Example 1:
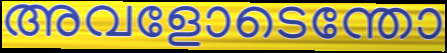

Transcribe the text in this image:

അവളോടെന്തോ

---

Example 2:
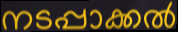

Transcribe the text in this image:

നടപ്പാക്കൽ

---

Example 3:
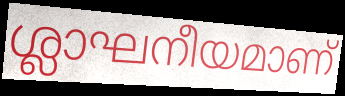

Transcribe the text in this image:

ശ്ലാഘനീയമാണ്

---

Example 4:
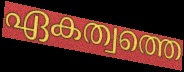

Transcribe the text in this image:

ഏകത്വത്തെ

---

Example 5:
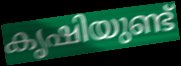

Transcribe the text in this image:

കൃഷിയുണ്ട്